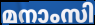
മനാംസി